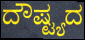
ದೌಷ್ಟ್ಯದ